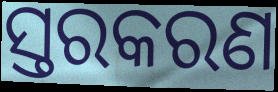
ସ୍ତରକରଣ